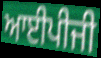
ਆਈਪੀਜੀ